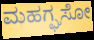
ಮಹಗ್ಘಸೋ